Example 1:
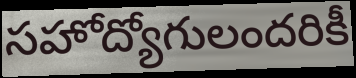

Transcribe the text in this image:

సహోద్యోగులందరికీ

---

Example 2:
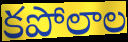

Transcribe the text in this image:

కపోలాల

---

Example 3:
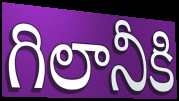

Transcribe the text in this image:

గిలానీకి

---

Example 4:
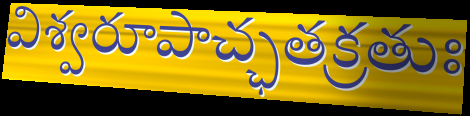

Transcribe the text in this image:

విశ్వరూపాచ్ఛతక్రతుః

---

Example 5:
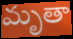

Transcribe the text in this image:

మృతా